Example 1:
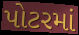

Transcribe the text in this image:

પોટરમાં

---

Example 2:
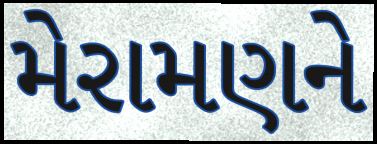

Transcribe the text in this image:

મેરામણને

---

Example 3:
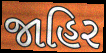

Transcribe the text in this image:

જાહિર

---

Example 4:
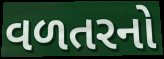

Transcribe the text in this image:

વળતરનો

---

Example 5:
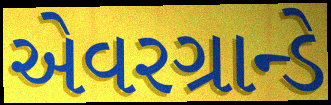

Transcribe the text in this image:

એવરગ્રાન્ડે